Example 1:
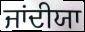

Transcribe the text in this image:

ਜਾਂਦੀਯਾ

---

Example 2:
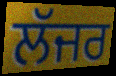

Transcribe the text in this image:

ਲੱਜਰ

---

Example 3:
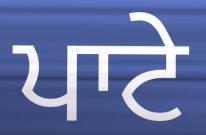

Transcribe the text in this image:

ਪਾਟੇ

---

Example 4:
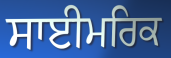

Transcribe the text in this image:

ਸਾਈਮਰਿਕ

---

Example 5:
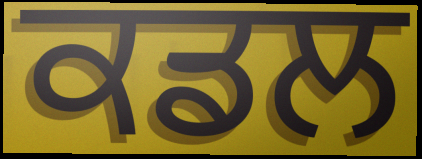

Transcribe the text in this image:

ਕਡਲ